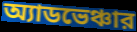
অ্যাডভেঞ্চার